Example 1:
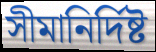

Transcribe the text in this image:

সীমানির্দিষ্ট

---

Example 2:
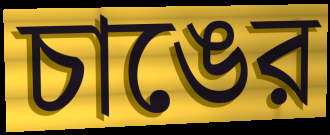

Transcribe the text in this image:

চাঙের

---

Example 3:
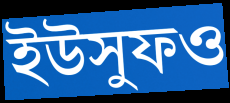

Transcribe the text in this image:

ইউসুফও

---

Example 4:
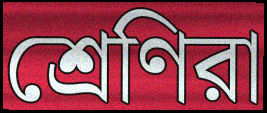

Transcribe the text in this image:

শ্রেণিরা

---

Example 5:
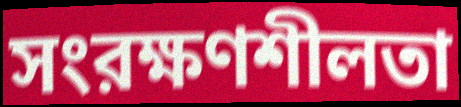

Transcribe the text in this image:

সংরক্ষণশীলতা